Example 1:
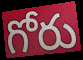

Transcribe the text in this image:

గోరు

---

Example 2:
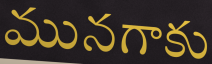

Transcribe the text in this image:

మునగాకు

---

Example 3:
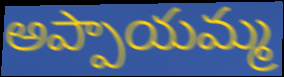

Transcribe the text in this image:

అప్పాయమ్మ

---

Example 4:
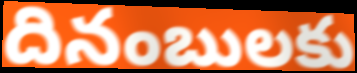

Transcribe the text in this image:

దినంబులకు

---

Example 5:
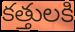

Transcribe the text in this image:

కత్తులకి